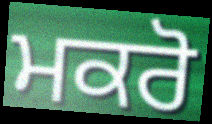
ਮਕਰੋ